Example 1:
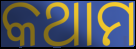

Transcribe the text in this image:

କଥାମ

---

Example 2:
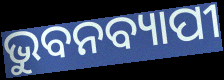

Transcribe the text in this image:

ଭୁବନବ୍ୟାପୀ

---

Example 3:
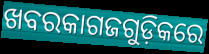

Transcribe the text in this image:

ଖବରକାଗଜଗୁଡ଼ିକରେ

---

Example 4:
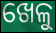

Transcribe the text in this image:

ଖେଳୁ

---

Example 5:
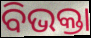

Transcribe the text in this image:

ବିଭକ୍ତା